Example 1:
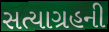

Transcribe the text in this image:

સત્યાગ્રહની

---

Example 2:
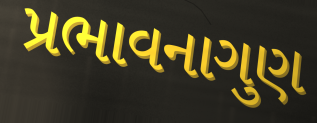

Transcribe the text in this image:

પ્રભાવનાગુણ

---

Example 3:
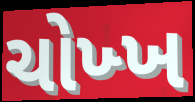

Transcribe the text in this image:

ચોખ્ખ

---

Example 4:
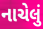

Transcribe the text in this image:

નાચેલું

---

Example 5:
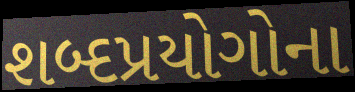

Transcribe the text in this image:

શબ્દપ્રયોગોના